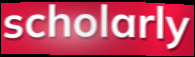
scholarly